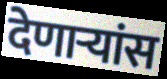
देणाऱ्यांस